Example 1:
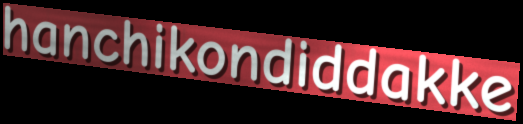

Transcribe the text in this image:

hanchikondiddakke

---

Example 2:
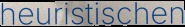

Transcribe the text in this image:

heuristischen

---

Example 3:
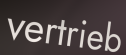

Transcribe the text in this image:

vertrieb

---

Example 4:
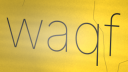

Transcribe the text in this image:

waqf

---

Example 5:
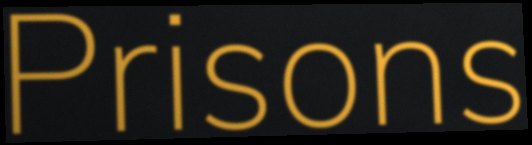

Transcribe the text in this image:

Prisons